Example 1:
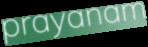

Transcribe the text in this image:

prayanam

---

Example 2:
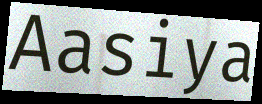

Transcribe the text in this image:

Aasiya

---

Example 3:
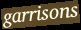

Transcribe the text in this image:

garrisons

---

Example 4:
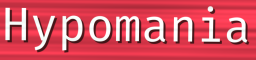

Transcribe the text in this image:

Hypomania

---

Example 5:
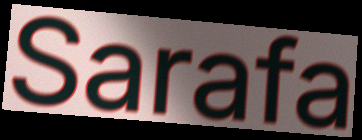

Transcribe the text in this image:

Sarafa